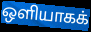
ஒளியாகக்